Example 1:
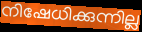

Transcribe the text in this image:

നിഷേധിക്കുന്നില്ല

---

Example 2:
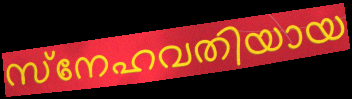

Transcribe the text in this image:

സ്‌നേഹവതിയായ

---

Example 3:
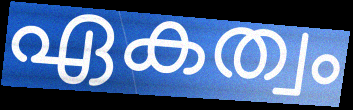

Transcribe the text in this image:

ഏകത്വം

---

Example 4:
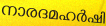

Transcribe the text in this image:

നാരദമഹർഷി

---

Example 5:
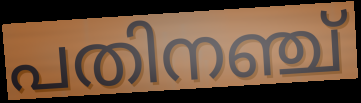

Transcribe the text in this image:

പതിനഞ്ച്